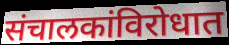
संचालकांविरोधात